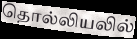
தொல்லியலில்